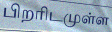
பிறரிடமுள்ள